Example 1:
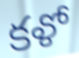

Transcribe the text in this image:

కళో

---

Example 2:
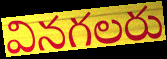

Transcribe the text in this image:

వినగలరు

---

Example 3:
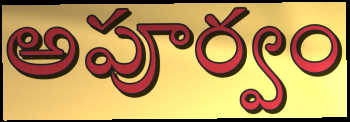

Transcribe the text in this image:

అపూర్వం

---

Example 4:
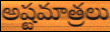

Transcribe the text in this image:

అష్టమాత్రలు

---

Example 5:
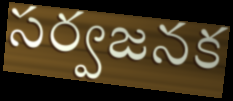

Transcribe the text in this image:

సర్వజనక